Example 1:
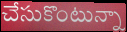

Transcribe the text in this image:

చేసుకొంటున్నా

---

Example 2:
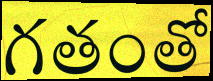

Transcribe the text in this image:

గతంతో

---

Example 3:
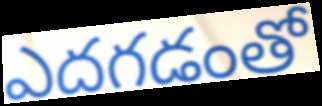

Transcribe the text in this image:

ఎదగడంతో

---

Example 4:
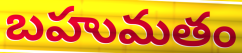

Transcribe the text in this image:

బహుమతం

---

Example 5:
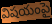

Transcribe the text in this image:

విషయంపై